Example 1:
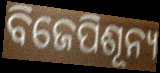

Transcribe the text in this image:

ବିଜେପିଶୂନ୍ୟ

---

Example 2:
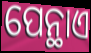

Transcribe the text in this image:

ପେନ୍ଥାଏ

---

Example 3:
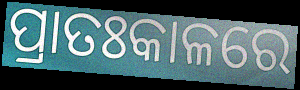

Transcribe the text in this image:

ପ୍ରାତଃକାଳରେ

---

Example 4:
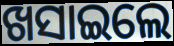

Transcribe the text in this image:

ଖସାଇଲେ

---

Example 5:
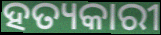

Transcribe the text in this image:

ହତ୍ୟକାରୀ